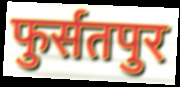
फुर्सतपुर